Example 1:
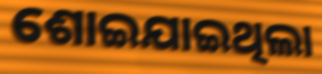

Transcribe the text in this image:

ଶୋଇଯାଇଥିଲା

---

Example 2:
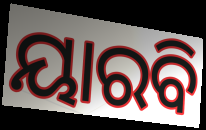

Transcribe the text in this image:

ୟାରବି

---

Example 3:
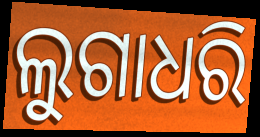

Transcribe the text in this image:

ଲୁଗାଧରି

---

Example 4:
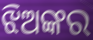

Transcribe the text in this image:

ଝିଅଙ୍କର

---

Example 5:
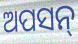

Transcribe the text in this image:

ଅପସନ୍